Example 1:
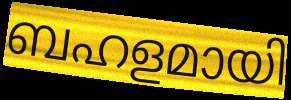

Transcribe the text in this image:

ബഹളമായി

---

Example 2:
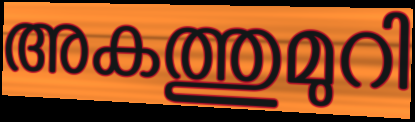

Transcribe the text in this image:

അകത്തുമുറി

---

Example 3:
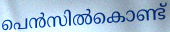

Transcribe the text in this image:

പെൻസിൽകൊണ്ട്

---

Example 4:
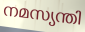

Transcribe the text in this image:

നമസ്യന്തി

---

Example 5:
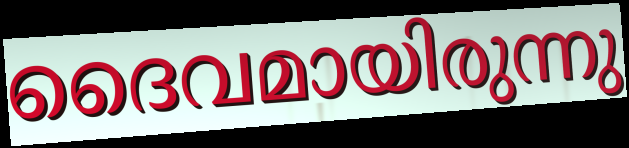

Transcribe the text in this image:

ദൈവമായിരുന്നു